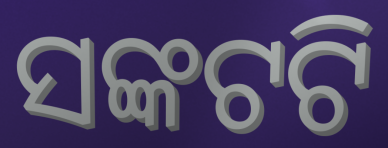
ସଙ୍କଟଟି